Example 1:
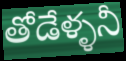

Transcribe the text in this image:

తోడేళ్ళనీ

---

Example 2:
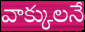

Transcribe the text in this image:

వాక్కులనే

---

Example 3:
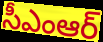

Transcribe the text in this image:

సీఎంఆర్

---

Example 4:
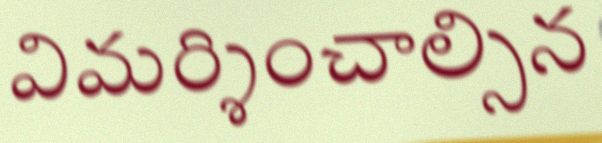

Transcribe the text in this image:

విమర్శించాల్సిన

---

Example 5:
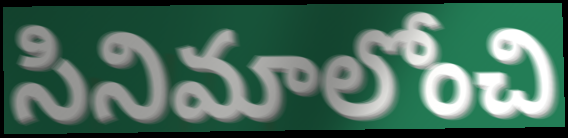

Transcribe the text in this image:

సినిమాలోంచి